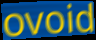
ovoid